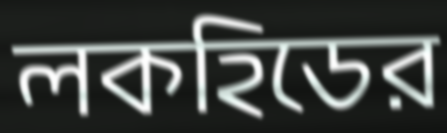
লকহিডের